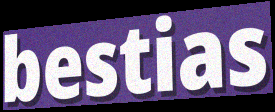
bestias